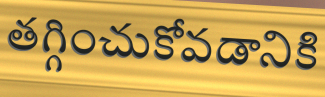
తగ్గించుకోవడానికి